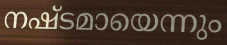
നഷ്ടമായെന്നും